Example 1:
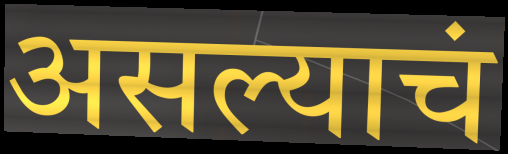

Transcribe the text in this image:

असल्याचं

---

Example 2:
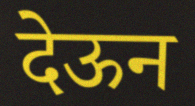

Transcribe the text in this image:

देऊन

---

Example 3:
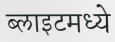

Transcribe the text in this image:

ब्लाइटमध्ये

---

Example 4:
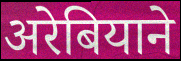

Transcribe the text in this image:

अरेबियाने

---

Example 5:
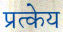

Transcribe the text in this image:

प्रत्केय